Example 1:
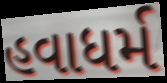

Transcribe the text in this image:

હવાધર્મ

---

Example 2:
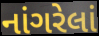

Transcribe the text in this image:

નાંગરેલાં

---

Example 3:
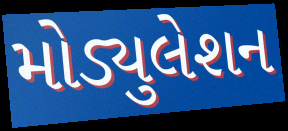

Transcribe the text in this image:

મોડ્યુલેશન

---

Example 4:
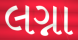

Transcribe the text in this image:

લગ્ના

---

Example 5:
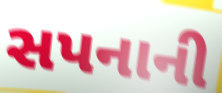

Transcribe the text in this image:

સપનાની